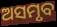
ଅସମୃବ